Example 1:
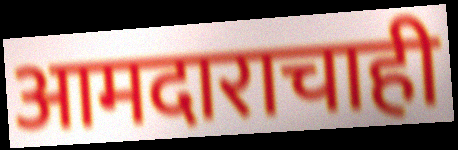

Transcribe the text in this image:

आमदाराचाही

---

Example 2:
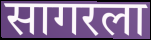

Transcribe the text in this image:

सागरला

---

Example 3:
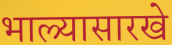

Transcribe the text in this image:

भाल्यासारखे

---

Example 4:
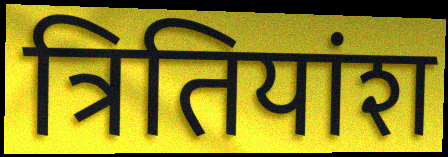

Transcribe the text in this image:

त्रितियांश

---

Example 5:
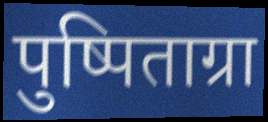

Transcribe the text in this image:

पुष्पिताग्रा